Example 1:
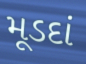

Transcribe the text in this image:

મૂડદાં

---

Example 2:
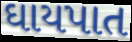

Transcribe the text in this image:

ઘાયપાત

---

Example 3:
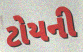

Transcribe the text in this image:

ટોયની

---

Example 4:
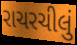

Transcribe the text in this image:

રાચરચીલું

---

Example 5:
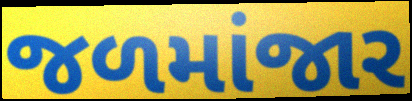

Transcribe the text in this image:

જળમાંજાર